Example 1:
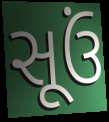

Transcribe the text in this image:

સૂઉં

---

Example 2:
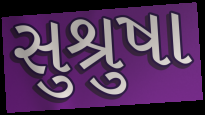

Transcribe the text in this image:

સુશ્રુષા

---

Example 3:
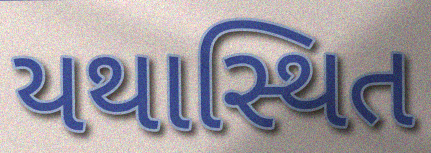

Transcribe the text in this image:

યથાસ્થિત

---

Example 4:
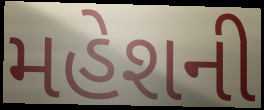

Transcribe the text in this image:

મહેશની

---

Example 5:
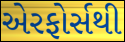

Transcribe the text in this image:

એરફોર્સથી